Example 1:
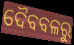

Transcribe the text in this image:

ଦୈବବଳରୁ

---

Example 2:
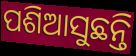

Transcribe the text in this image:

ପଶିଆସୁଛନ୍ତି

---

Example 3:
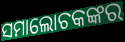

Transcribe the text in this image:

ସମାଲୋଚକଙ୍କର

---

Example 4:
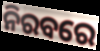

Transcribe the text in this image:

ନିରବରେ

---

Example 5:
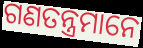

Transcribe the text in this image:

ଗଣତନ୍ତ୍ରମାନେ